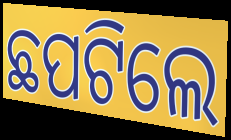
ଛପଟିଲେ